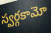
స్వర్గకామో